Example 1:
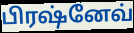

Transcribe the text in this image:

பிரஷ்னேவ்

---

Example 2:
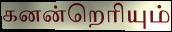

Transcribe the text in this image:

கனன்றெரியும்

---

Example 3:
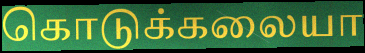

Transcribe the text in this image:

கொடுக்கலையா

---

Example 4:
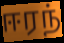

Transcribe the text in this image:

ஈரந்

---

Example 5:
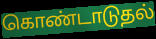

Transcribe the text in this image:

கொண்டாடுதல்